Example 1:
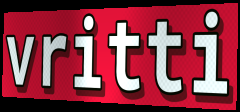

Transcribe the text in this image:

vritti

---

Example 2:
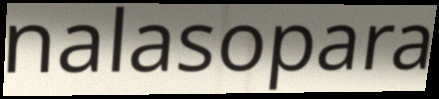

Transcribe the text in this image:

nalasopara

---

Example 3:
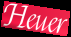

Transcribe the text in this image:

Heuer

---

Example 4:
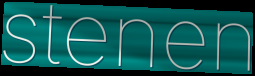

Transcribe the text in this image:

stenen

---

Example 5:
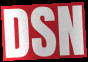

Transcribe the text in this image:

DSN